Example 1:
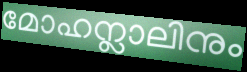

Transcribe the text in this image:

മോഹന്ലാലിനും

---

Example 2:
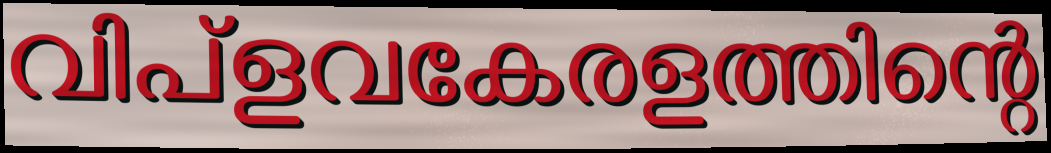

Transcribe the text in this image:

വിപ്ളവകേരളത്തിന്റെ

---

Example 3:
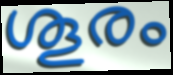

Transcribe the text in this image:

ശൂരം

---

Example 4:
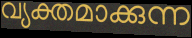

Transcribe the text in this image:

വ്യക്തമാക്കുന്ന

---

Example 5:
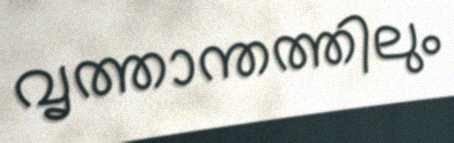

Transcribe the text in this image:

വൃത്താന്തത്തിലും